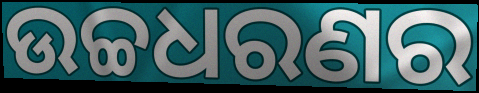
ଉଚ୍ଚଧରଣର